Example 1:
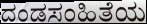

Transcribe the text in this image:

ದಂಡಸಂಹಿತೆಯ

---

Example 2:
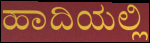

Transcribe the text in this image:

ಹಾದಿಯಲ್ಲಿ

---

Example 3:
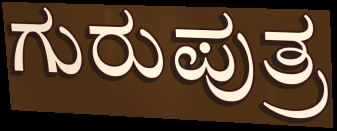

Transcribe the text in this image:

ಗುರುಪುತ್ರ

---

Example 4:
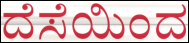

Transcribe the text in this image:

ದೆಸೆಯಿಂದ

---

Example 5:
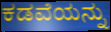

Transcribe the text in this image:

ಕಡವೆಯನ್ನು